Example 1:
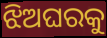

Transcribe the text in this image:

ଝିଅଘରକୁ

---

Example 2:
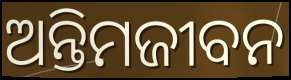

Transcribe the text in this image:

ଅନ୍ତିମଜୀବନ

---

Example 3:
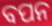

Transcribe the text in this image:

ବପନ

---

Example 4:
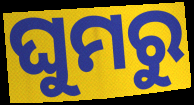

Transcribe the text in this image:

ଘୁମରୁ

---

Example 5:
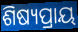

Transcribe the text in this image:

ଶିଷ୍ୟପ୍ରାୟ